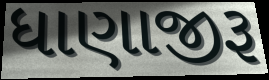
ધાણાજીરૂ